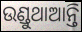
ଉଣ୍ଡୁଥାଆନ୍ତି